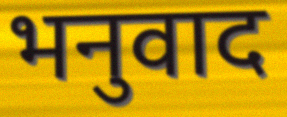
भनुवाद